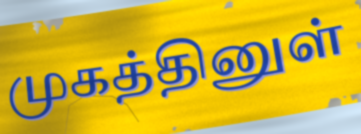
முகத்தினுள்